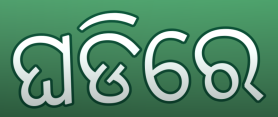
ଘଡିରେ